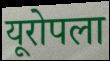
यूरोपला